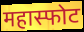
महास्फोट